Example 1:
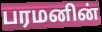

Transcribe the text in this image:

பரமனின்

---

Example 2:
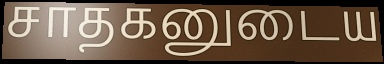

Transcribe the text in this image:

சாதகனுடைய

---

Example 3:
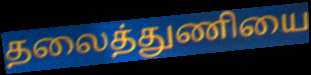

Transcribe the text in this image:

தலைத்துணியை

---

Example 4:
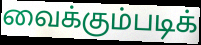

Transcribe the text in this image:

வைக்கும்படிக்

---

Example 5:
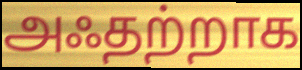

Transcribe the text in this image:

அஃதற்றாக